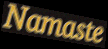
Namaste